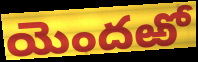
యెందఱో